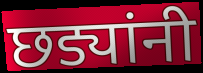
छड्यांनी